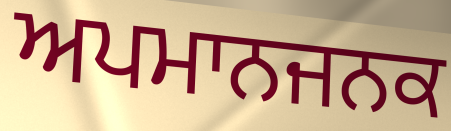
ਅਪਮਾਨਜਨਕ